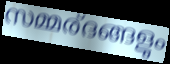
സമ്മര്ദങ്ങളും